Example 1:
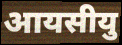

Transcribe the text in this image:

आयसीयु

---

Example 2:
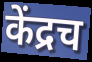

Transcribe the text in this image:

केंद्रच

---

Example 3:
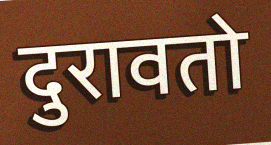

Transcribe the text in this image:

दुरावतो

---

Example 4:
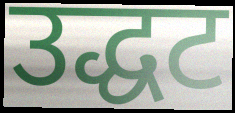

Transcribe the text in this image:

उद्धट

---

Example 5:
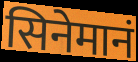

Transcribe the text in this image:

सिनेमानं